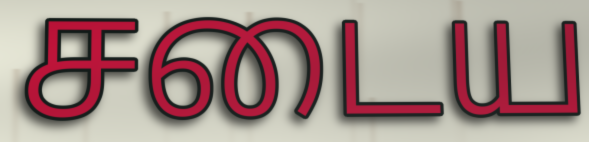
சடைய